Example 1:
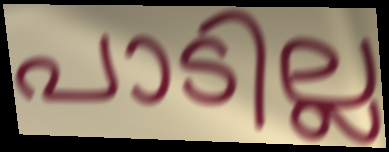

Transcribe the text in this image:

പാടില്ല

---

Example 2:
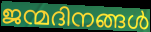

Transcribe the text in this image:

ജന്മദിനങ്ങൾ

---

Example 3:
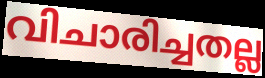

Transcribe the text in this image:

വിചാരിച്ചതല്ല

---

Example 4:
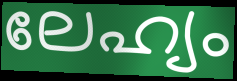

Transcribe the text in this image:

ലേഹ്യം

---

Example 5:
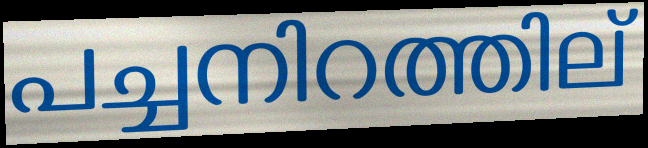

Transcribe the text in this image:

പച്ചനിറത്തില്